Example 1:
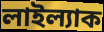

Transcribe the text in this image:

লাইল্যাক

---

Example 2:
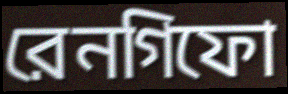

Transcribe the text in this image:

রেনগিফো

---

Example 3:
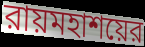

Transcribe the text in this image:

রায়মহাশয়ের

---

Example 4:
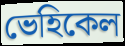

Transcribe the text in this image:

ভেহিকেল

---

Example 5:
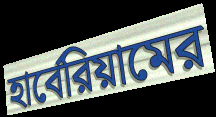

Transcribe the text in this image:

হার্বেরিয়ামের